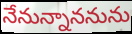
నేనున్నాననును